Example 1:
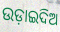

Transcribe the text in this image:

ଉଡ଼ାଇଦିଅ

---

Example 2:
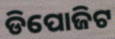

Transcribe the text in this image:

ଡିପୋଜିଟ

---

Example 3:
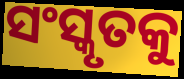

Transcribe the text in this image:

ସଂସ୍କୃତକୁ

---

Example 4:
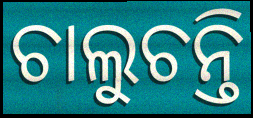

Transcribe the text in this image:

ଚାଲୁଚନ୍ତି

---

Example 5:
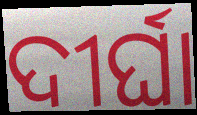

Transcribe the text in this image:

ଦୀର୍ଘା